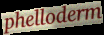
phelloderm